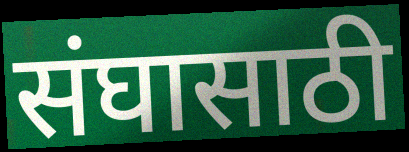
संघासाठी